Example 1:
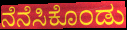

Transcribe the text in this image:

ನೆನೆಸಿಕೊಂಡು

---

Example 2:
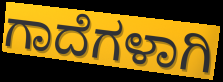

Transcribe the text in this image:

ಗಾದೆಗಳಾಗಿ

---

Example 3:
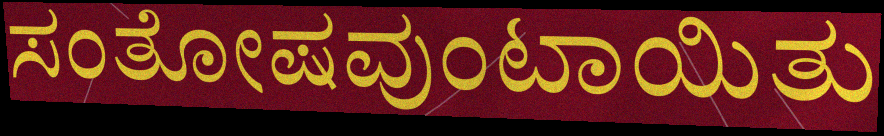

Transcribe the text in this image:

ಸಂತೋಷವುಂಟಾಯಿತು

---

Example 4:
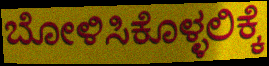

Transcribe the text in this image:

ಬೋಳಿಸಿಕೊಳ್ಳಲಿಕ್ಕೆ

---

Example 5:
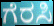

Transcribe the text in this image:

ಗೆರಸಿ